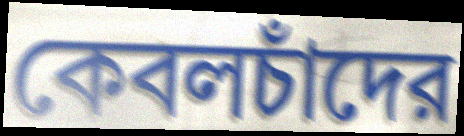
কেবলচাঁদের